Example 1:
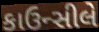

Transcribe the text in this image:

કાઉન્સીલે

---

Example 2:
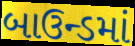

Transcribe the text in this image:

બાઉન્ડમાં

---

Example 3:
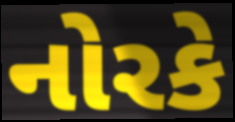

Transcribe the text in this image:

નોરકે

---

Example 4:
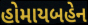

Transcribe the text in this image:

હોમાયબહેન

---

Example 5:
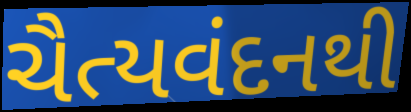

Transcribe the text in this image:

ચૈત્યવંદનથી